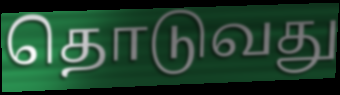
தொடுவது